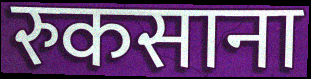
रुकसाना